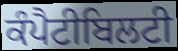
ਕੰਪੈਟੀਬਿਲਟੀ